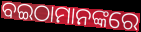
ବଇଠାମାନଙ୍କରେ